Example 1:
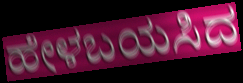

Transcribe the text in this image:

ಹೇಳಬಯಸಿದ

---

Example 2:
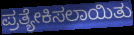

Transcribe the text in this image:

ಪ್ರತ್ಯೇಕಿಸಲಾಯಿತು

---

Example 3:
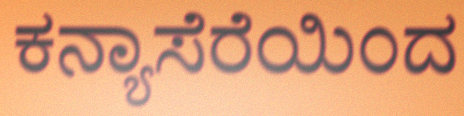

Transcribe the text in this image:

ಕನ್ಯಾಸೆರೆಯಿಂದ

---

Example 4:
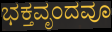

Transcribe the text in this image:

ಭಕ್ತವೃಂದವೂ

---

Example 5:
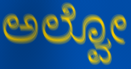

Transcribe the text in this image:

ಅಲ್ವೋ